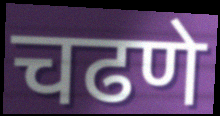
चढणे